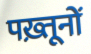
पख़्तूनों